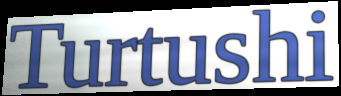
Turtushi